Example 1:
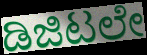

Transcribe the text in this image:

ಡಿಜಿಟಲೇ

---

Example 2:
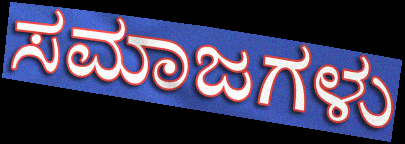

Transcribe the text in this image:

ಸಮಾಜಗಳು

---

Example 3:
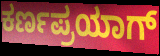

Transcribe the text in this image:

ಕರ್ಣಪ್ರಯಾಗ್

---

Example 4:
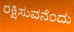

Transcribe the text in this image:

ರಕ್ಷಿಸುವನೆಂದು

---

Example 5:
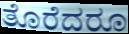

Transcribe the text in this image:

ತೊರೆದರೂ